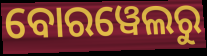
ବୋରୱେଲରୁ